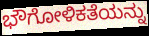
ಭೌಗೋಳಿಕತೆಯನ್ನು